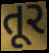
તૂર